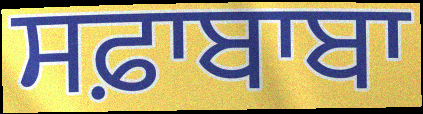
ਸਫ਼ਾਬਾਬਾ